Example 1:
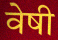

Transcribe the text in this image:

वेषी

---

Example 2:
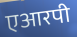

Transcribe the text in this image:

एआरपी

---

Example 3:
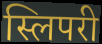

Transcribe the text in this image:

स्लिपरी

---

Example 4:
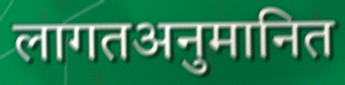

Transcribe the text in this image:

लागतअनुमानित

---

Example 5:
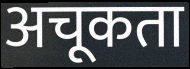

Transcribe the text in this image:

अचूकता